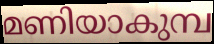
മണിയാകുമ്പ